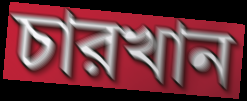
চারখান